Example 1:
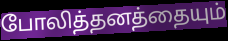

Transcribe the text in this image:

போலித்தனத்தையும்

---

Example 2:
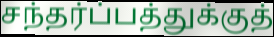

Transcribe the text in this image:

சந்தர்ப்பத்துக்குத்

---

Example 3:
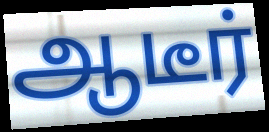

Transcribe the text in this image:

ஆடீர்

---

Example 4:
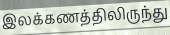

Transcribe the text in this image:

இலக்கணத்திலிருந்து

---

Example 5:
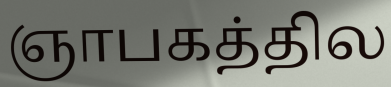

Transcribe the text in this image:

ஞாபகத்தில